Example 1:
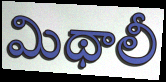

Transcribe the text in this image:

మిథాలీ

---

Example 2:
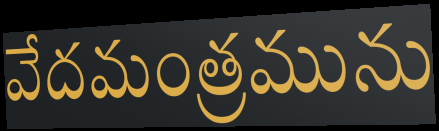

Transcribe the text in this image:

వేదమంత్రమును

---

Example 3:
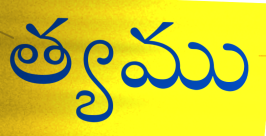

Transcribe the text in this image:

త్యము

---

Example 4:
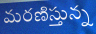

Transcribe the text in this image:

మరణిస్తున్న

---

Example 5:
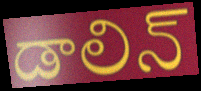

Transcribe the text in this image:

డాలిన్